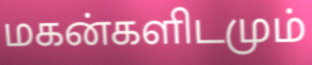
மகன்களிடமும்